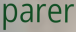
parer